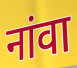
नांवा